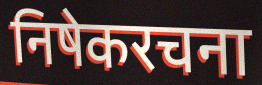
निषेकरचना